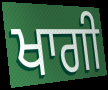
ਖਾਗੀ